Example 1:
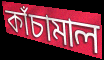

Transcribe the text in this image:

কাঁচামাল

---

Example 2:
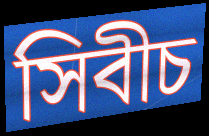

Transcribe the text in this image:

সিবীচ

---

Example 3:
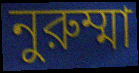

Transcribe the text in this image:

নুরুম্মা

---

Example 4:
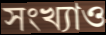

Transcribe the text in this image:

সংখ্যাও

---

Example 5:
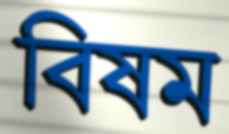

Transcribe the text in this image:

বিষম